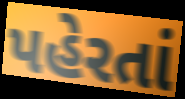
પહેરતાં